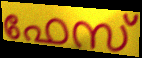
ഫേസ്